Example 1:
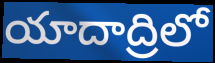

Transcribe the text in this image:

యాదాద్రిలో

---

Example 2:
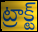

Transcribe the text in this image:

ట్రాక్ట్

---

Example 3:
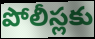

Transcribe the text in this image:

పోలీస్లకు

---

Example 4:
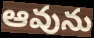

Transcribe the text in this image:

ఆవును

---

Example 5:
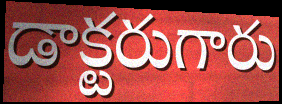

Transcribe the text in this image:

డాక్టరుగారు